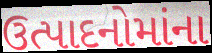
ઉત્પાદનોમાંના